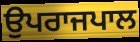
ਉਪਰਾਜਪਾਲ